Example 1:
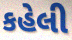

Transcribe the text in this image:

કહેલી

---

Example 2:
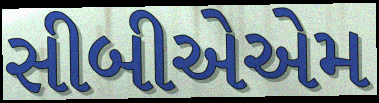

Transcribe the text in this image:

સીબીએએમ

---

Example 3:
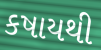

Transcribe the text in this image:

કષાયથી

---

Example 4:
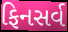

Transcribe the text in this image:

ફિનસર્વ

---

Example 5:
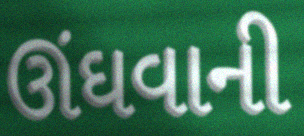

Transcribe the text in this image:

ઊંઘવાની